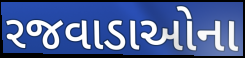
રજવાડાઓના